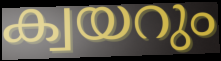
ക്വയറും